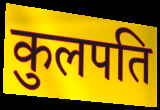
कुलपति